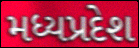
મધ્યપ્રદેશ